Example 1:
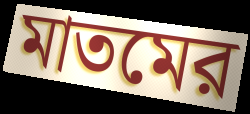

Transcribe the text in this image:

মাতমের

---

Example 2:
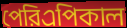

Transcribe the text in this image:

পেরিএপিকাল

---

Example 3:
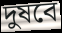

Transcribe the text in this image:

দুষবে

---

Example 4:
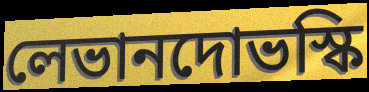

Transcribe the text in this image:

লেভানদোভস্কি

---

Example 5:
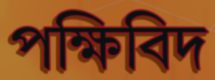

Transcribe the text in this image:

পক্ষিবিদ